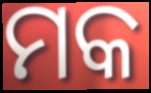
ମକ